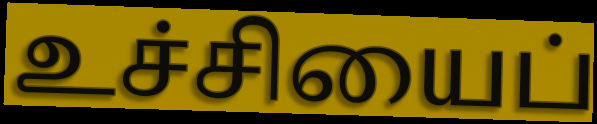
உச்சியைப்